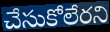
చేసుకోలేరని